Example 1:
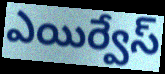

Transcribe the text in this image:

ఎయిర్వేస్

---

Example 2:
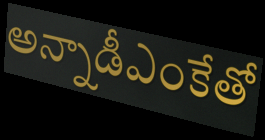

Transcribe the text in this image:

అన్నాడీఎంకేతో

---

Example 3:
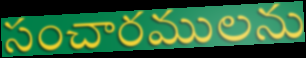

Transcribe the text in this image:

సంచారములను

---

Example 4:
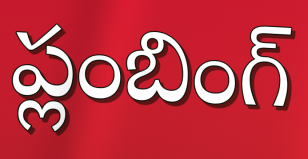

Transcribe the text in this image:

ప్లంబింగ్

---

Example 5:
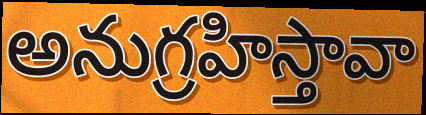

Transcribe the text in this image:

అనుగ్రహిస్తావా